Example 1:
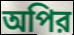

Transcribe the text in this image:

অপির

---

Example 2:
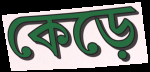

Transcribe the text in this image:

কেড়ে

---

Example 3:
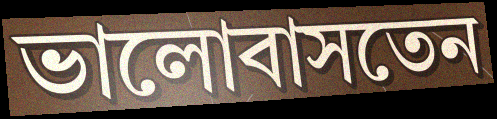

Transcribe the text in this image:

ভালোবাসতেন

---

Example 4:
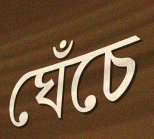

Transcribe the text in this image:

ঘেঁচে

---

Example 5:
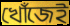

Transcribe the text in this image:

খোঁজেই